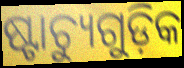
ଷ୍ଟାଚ୍ୟୁଗୁଡ଼ିକ